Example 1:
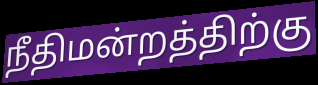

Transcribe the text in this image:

நீதிமன்றத்திற்கு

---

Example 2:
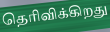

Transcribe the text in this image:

தெரிவிக்கிறது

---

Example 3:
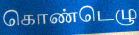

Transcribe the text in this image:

கொண்டெழு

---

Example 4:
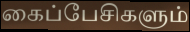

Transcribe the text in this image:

கைப்பேசிகளும்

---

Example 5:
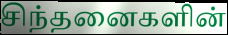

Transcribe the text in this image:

சிந்தனைகளின்